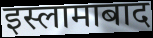
इस्लामाबाद